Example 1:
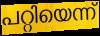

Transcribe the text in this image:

പറ്റിയെന്ന്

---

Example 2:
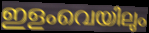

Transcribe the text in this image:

ഇളംവെയിലും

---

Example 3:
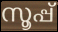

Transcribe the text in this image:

സൂപ്പ്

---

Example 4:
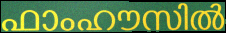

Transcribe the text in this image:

ഫാംഹൗസിൽ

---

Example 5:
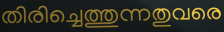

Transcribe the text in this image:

തിരിച്ചെത്തുന്നതുവരെ